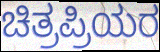
ಚಿತ್ರಪ್ರಿಯರ